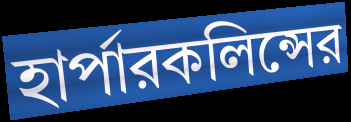
হার্পারকলিন্সের